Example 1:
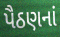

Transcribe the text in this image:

પૈઠણનાં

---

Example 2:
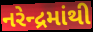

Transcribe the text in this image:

નરેન્દ્રમાંથી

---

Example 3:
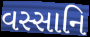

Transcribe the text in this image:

વસ્સાનિ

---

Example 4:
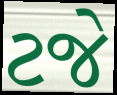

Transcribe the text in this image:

ટજે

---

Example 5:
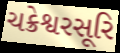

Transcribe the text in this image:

ચક્રેશ્વરસૂરિ